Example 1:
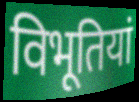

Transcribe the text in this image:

विभूतियां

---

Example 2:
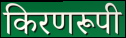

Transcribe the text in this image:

किरणरूपी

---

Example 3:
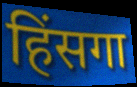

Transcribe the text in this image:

हिंसगा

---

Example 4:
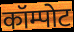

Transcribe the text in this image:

कॉम्पोट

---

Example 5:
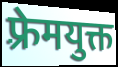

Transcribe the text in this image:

फ़्रेमयुक्त